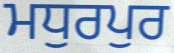
ਮਧੁਰਪੁਰ